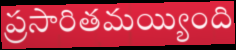
ప్రసారితమయ్యింది